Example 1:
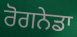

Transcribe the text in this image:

ਰੋਗਨੇਡਾ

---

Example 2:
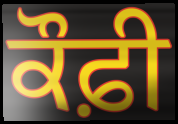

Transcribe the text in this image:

ਕੌਫ਼ੀ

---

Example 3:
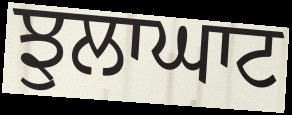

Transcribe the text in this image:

ਝੁਲਾਘਾਟ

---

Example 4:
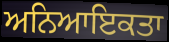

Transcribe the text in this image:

ਅਨਿਆਇਕਤਾ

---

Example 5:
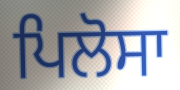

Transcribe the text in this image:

ਪਿਲੋਸਾ